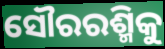
ସୌରରଶ୍ମିକୁ